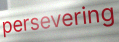
persevering